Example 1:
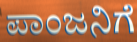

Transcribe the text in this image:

ಪಾಂಜನಿಗೆ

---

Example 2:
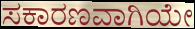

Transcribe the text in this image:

ಸಕಾರಣವಾಗಿಯೇ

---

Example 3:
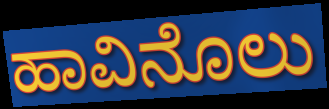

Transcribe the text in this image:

ಹಾವಿನೊಲು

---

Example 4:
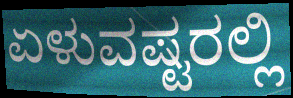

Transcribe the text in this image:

ಏಳುವಷ್ಟರಲ್ಲಿ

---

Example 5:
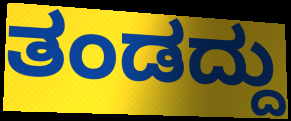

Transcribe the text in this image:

ತಂಡದ್ದು